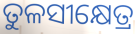
ତୁଳସୀକ୍ଷେତ୍ର